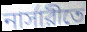
নার্সারীতে